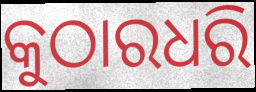
କୁଠାରଧରି